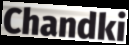
Chandki